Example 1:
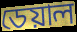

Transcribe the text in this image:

ডেয়াল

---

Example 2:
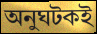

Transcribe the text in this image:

অনুঘটকই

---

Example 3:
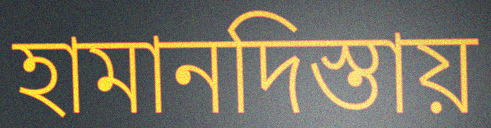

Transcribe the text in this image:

হামানদিস্তায়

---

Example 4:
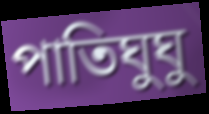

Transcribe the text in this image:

পাতিঘুঘু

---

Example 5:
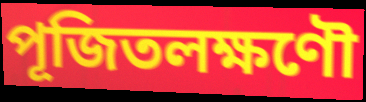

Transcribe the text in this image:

পূজিতলক্ষণৌ